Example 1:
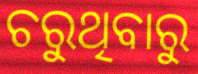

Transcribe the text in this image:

ଚରୁଥିବାରୁ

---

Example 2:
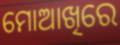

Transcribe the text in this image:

ମୋଆଖିରେ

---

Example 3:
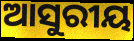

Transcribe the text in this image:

ଆସୁରୀୟ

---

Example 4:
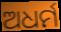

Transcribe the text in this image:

ଅଧର୍ମ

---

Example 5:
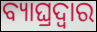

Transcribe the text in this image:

ବ୍ୟାଘ୍ରଦ୍ଵାର